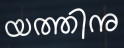
യത്തിനു